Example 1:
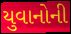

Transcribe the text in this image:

યુવાનોની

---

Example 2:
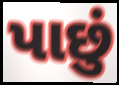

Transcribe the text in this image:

પાછું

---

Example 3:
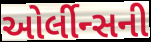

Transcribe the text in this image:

ઓર્લીન્સની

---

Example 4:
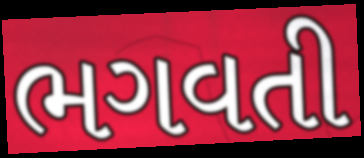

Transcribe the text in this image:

ભગવતી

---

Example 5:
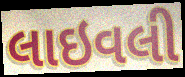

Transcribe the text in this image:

લાઇવલી